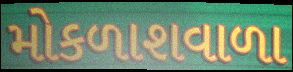
મોકળાશવાળા